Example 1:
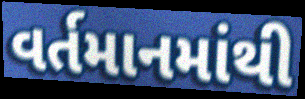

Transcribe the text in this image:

વર્તમાનમાંથી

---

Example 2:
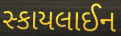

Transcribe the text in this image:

સ્કાયલાઈન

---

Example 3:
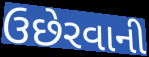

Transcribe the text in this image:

ઉછેરવાની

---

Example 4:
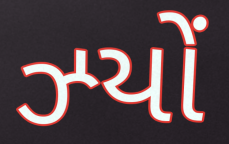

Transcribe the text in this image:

ઝ્યોં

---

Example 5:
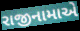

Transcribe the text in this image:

રાજીનામાએ